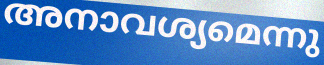
അനാവശ്യമെന്നു